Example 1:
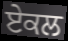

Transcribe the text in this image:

ਏਕਲ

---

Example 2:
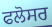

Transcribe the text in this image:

ਫਲੋਸਰ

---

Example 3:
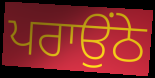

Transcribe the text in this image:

ਪਰਾਉਂਠੇ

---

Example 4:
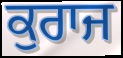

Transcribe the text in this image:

ਕੁਰਾਜ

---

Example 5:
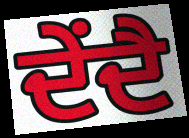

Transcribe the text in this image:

ਦੇਂਦੈ